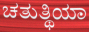
ಚತುತ್ಥಿಯಾ